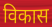
विकास